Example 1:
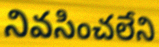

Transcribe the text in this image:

నివసించలేని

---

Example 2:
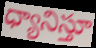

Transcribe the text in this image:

ధ్యానిస్తూ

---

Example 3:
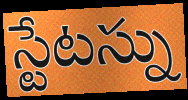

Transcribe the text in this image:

స్టేటస్ను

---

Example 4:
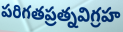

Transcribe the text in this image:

పరిగతప్రత్నవిగ్రహ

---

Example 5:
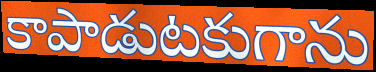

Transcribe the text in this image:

కాపాడుటకుగాను